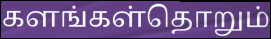
களங்கள்தொறும்